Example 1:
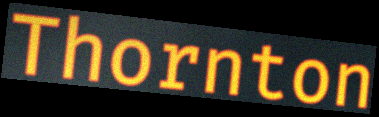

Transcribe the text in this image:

Thornton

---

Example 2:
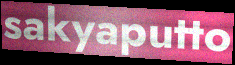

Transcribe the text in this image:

sakyaputto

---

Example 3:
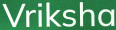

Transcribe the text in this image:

Vriksha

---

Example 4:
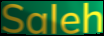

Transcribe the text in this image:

Saleh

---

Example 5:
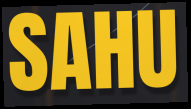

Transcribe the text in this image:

SAHU